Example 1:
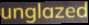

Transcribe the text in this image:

unglazed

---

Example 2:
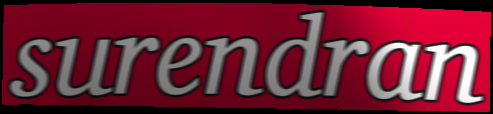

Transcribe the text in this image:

surendran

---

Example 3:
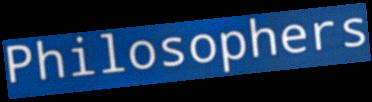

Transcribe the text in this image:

Philosophers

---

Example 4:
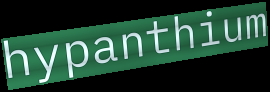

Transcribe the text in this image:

hypanthium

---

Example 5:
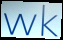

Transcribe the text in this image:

wk